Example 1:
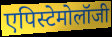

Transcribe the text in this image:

एपिस्टेमोलॉजी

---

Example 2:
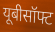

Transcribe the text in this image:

यूबीसॉफ्ट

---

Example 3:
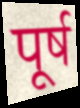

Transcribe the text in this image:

पूर्ष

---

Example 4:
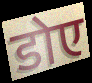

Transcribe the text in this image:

डोए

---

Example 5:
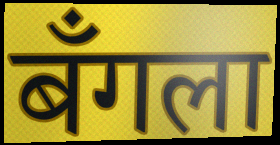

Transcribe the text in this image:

बँगला